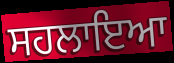
ਸਹਲਾਇਆ